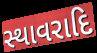
સ્થાવરાદિ